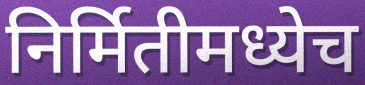
निर्मितीमध्येच